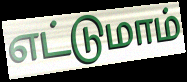
எட்டுமாம்